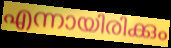
എന്നായിരിക്കും